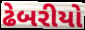
ઢેબરીયો